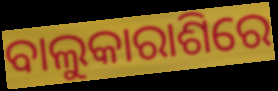
ବାଲୁକାରାଶିରେ